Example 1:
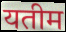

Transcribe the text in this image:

यतीम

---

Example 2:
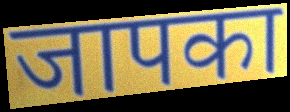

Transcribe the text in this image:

जापका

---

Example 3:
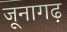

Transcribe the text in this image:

जूनागढ़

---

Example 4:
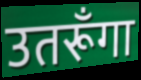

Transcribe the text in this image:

उतरूँगा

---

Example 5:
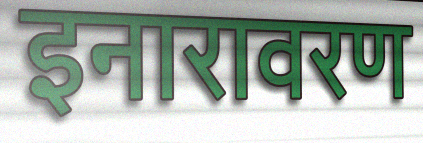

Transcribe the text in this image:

इनारावरण